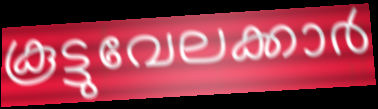
കൂട്ടുവേലക്കാർ